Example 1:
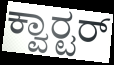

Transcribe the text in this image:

ಕ್ವಾರ‍್ಟರ್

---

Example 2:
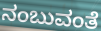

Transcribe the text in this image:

ನಂಬುವಂತೆ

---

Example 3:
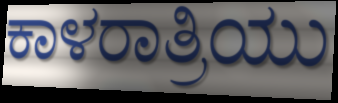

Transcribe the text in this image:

ಕಾಳರಾತ್ರಿಯು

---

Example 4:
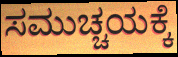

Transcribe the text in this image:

ಸಮುಚ್ಚಯಕ್ಕೆ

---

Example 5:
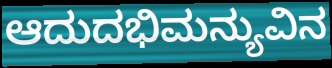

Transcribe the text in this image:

ಆದುದಭಿಮನ್ಯುವಿನ